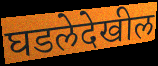
घडलेदेखील